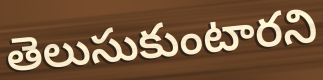
తెలుసుకుంటారని